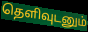
தெளிவுடனும்